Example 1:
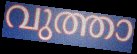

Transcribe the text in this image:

വുത്താ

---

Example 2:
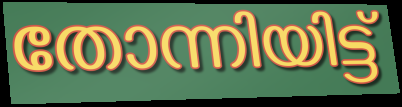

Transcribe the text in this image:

തോന്നിയിട്ട്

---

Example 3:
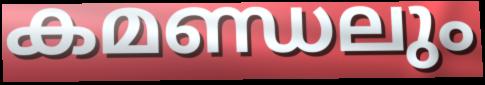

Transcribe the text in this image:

കമണ്ഡലും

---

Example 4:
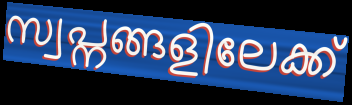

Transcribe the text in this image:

സ്വപ്നങ്ങളിലേക്ക്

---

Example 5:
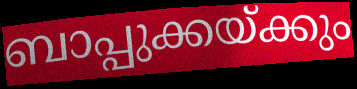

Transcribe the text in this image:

ബാപ്പുക്കയ്ക്കും